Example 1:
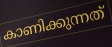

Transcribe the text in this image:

കാണിക്കുന്നത്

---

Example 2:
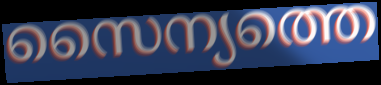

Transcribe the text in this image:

സൈന്യത്തെ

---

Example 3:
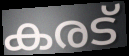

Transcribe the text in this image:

കരട്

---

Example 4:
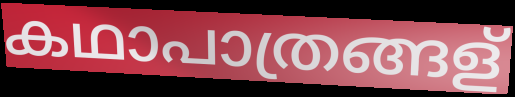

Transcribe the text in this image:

കഥാപാത്രങ്ങള്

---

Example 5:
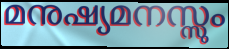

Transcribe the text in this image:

മനുഷ്യമനസ്സും